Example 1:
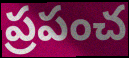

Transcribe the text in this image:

ప్రపంచ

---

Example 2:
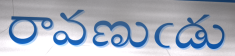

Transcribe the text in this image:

రావణుఁడు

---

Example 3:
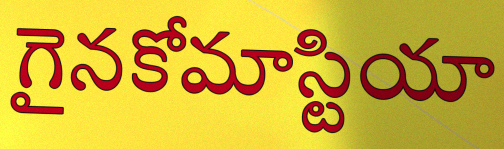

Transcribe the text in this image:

గైనకోమాస్టియా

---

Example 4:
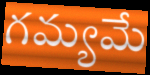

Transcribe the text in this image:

గమ్యమే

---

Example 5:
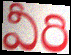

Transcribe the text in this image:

వీరి